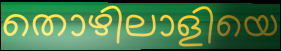
തൊഴിലാളിയെ